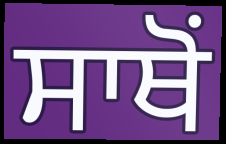
ਸਾਥੋਂ